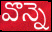
వొన్నె